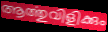
ആൎത്തുവിളിക്കും